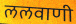
ललवाणी